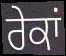
ਰੇਕਾਂ